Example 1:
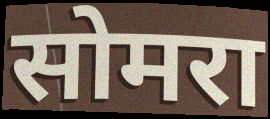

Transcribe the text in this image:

सोमरा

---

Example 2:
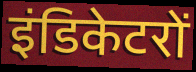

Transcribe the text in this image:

इंडिकेटरों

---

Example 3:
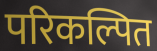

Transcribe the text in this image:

परिकल्पित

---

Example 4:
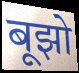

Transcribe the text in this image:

बूझो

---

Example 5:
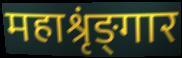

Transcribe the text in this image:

महाश्रृंङ्गार